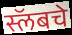
स्लॅबचे